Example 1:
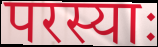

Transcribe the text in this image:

परस्याः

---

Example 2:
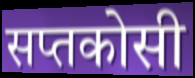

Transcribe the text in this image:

सप्तकोसी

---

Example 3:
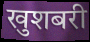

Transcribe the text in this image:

खुशबरी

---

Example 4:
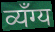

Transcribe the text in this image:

व्यँग्य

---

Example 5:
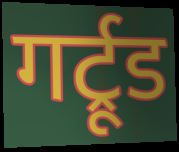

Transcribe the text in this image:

गर्ट्रूड